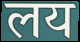
लय